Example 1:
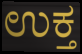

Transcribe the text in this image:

ಉಕ್ತ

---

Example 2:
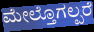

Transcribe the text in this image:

ಮೇಲ್ತೊಗಲ್ಪರೆ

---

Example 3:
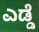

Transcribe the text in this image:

ಎಡ್ಡೆ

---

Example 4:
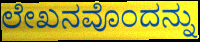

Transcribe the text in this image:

ಲೇಖನವೊಂದನ್ನು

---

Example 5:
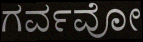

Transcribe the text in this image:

ಗರ್ವವೋ